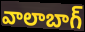
వాలాబాగ్